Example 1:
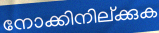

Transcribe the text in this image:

നോക്കിനില്ക്കുക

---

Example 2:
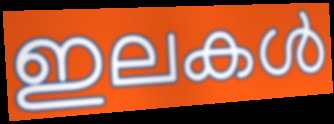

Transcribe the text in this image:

ഇലകൾ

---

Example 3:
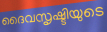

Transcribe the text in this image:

ദൈവസൃഷ്ടിയുടെ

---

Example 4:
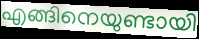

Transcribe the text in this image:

എങ്ങിനെയുണ്ടായി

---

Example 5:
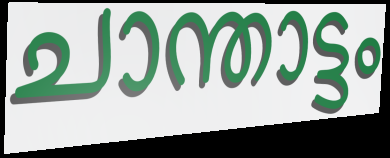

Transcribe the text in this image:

ചാന്താട്ടം